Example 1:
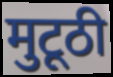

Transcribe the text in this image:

मुटूठी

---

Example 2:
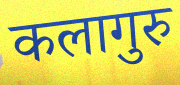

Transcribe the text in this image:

कलागुरु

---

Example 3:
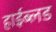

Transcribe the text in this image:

हाईब्लड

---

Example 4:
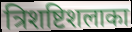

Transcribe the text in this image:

त्रिशष्टिशलाका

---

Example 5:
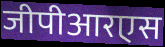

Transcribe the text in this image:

जीपीआरएस